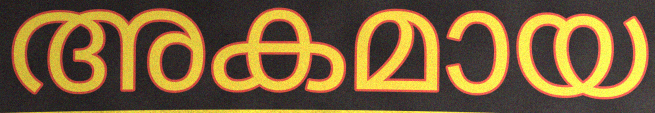
അകമായ